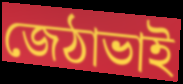
জেঠাভাই